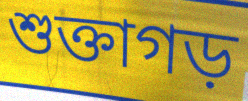
শুক্তাগড়